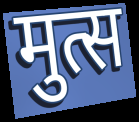
मुत्स